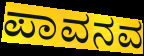
ಪಾವನವ